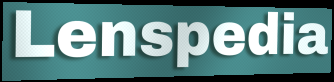
Lenspedia